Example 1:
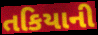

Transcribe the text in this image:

તકિયાની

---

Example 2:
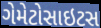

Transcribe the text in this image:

ગેમેટોસાઇટસ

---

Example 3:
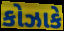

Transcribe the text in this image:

કોઝાકે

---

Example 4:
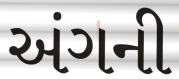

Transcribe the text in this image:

અંગની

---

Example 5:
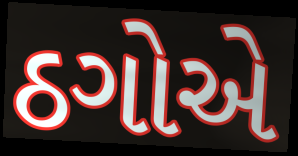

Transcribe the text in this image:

ઠગોએ